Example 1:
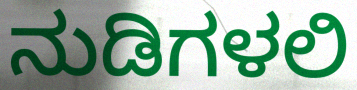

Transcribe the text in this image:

ನುಡಿಗಳಲಿ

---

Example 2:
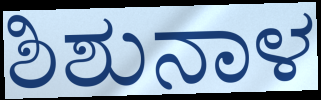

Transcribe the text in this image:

ಶಿಶುನಾಳ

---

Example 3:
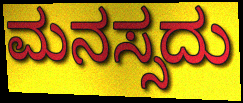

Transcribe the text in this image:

ಮನಸ್ಸದು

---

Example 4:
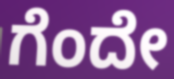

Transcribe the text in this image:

ಗೆಂದೇ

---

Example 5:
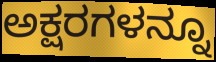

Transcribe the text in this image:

ಅಕ್ಷರಗಳನ್ನೂ